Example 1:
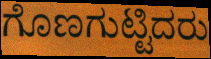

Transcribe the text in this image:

ಗೊಣಗುಟ್ಟಿದರು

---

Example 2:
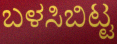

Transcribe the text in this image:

ಬಳಸಿಬಿಟ್ಟ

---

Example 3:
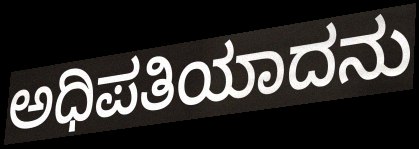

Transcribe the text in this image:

ಅಧಿಪತಿಯಾದನು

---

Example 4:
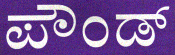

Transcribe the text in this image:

ಪೌಂಡ್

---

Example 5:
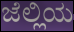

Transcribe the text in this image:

ಜೆಲ್ಲಿಯ